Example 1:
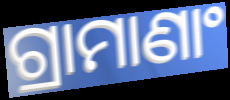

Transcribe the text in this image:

ଗ୍ରାମାଣାଂ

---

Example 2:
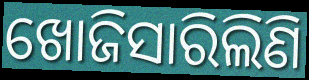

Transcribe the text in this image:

ଖୋଜିସାରିଲିଣି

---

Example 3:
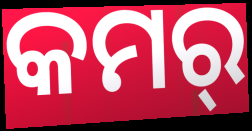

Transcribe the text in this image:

କମର୍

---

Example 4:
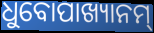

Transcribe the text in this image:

ଧୁବୋପାଖ୍ୟାନମ୍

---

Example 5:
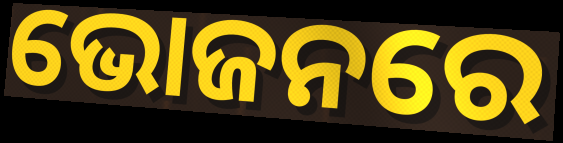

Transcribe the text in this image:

ଭୋଜନରେ